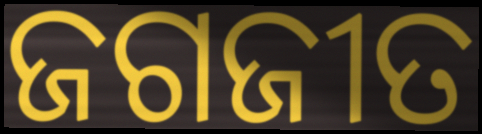
ଜଗଜୀତ